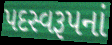
પદસ્વરૂપનાં